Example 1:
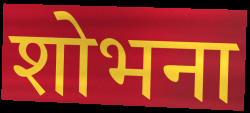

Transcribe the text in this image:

शोभना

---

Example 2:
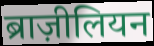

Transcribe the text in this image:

ब्राज़ीलियन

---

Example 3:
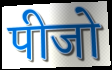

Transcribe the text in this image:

पीजो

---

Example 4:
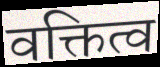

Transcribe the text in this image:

वक्तित्व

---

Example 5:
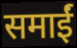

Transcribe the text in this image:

समाईं